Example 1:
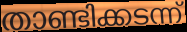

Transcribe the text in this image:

താണ്ടിക്കടന്ന്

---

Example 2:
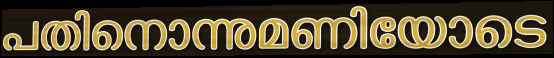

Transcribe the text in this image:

പതിനൊന്നുമണിയോടെ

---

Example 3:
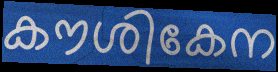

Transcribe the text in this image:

കൗശികേന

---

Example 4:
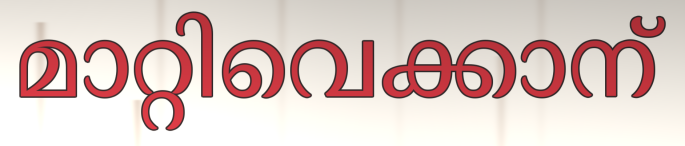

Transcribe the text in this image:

മാറ്റിവെക്കാന്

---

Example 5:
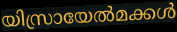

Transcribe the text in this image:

യിസ്രായേൽമക്കൾ